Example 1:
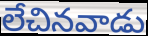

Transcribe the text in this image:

లేచినవాడు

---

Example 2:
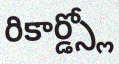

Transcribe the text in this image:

రికార్డ్స్లో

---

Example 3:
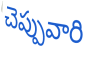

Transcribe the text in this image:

చెప్పువారి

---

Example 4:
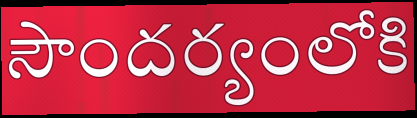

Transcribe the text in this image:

సౌందర్యంలోకి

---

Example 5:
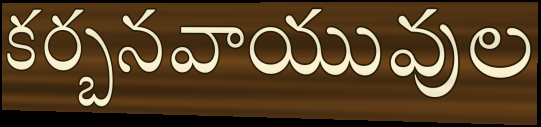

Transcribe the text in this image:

కర్బనవాయువుల